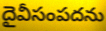
దైవీసంపదను